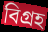
বিগ্ৰহ